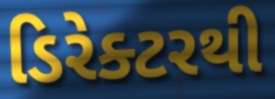
ડિરેક્ટરથી